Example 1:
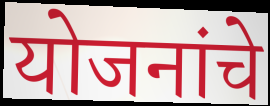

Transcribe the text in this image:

योजनांचे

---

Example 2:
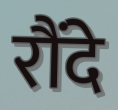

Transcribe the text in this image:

रौंदे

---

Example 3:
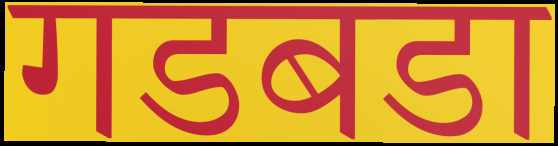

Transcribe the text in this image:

गडबडा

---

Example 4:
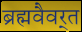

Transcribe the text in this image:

ब्रह्मवैवर्त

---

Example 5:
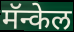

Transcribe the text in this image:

मॅन्केल